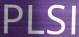
PLSI